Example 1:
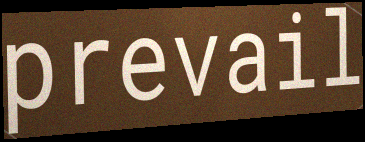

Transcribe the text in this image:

prevail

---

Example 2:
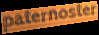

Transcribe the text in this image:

paternoster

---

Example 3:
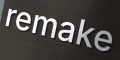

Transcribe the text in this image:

remake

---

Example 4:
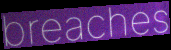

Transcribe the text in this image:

breaches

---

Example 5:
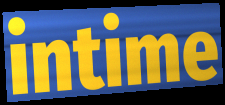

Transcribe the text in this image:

intime